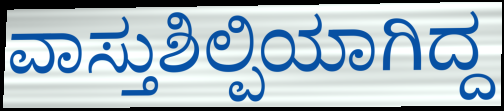
ವಾಸ್ತುಶಿಲ್ಪಿಯಾಗಿದ್ದ